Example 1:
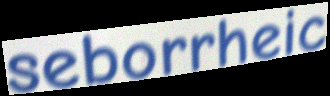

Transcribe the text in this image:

seborrheic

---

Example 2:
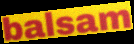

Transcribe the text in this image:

balsam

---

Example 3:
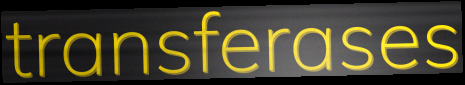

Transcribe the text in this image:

transferases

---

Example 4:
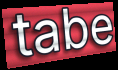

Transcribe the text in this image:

tabe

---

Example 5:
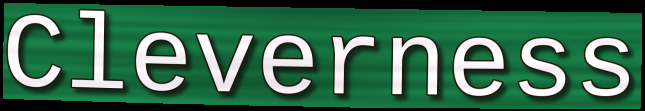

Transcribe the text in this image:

Cleverness